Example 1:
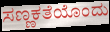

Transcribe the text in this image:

ಸಣ್ಣಕತೆಯೊಂದು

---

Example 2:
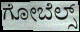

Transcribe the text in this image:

ಗೋಬೆಲ್ಸ್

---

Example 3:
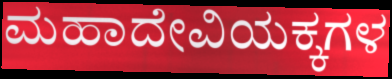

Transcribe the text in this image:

ಮಹಾದೇವಿಯಕ್ಕಗಳ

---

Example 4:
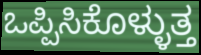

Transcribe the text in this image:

ಒಪ್ಪಿಸಿಕೊಳ್ಳುತ್ತ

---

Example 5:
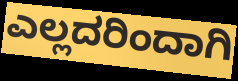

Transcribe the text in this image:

ಎಲ್ಲದರಿಂದಾಗಿ